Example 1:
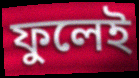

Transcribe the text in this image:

ফুলেই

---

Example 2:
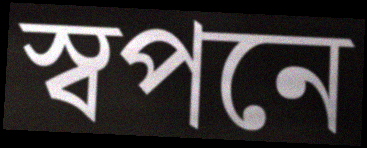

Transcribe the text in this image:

স্বপনে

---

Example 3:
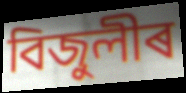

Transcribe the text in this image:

বিজুলীৰ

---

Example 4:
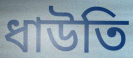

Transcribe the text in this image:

ধাউতি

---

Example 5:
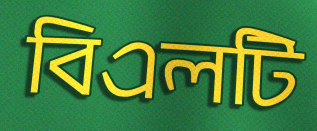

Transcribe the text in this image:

বিএলটি